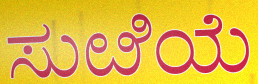
ಸುೞಿಯೆ